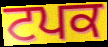
ਟਪਕ